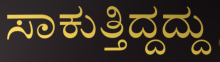
ಸಾಕುತ್ತಿದ್ದದ್ದು